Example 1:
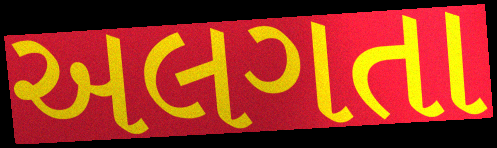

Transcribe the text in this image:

અલગતા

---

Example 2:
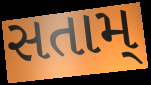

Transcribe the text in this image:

સતામ્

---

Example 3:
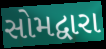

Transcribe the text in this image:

સોમદ્વારા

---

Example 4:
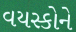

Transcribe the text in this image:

વયસ્કોને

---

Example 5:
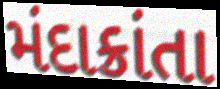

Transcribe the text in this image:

મંદાક્રાંતા